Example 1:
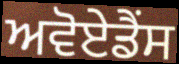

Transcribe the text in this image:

ਅਵੋਏਡੈਂਸ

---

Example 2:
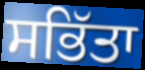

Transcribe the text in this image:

ਸਭਿੱਤਾ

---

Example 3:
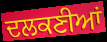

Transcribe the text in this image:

ਦਲਕਣੀਆਂ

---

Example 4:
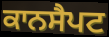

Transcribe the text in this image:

ਕਾਨਸੈਪਟ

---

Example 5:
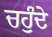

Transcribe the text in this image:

ਚਹੁੰਦੇ